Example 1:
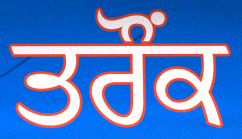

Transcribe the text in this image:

ਤਰੌਂਕ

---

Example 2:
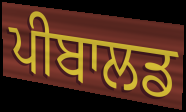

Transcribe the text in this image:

ਪੀਬਾਲਡ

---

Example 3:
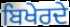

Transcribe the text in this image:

ਬਿਖੇਰਦੇ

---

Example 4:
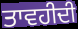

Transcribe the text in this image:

ਤਾਵਹੀਦੀ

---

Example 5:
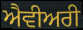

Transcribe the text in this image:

ਐਵੀਅਰੀ